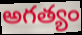
అగత్యం